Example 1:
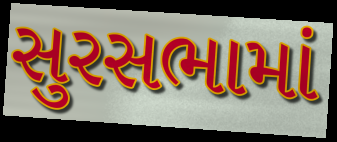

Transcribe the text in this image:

સુરસભામાં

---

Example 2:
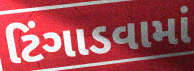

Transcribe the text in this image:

ટિંગાડવામાં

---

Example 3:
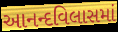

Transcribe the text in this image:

આનન્દવિલાસમાં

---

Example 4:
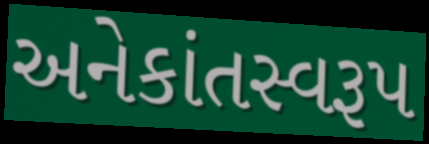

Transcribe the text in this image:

અનેકાંતસ્વરૂપ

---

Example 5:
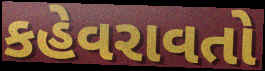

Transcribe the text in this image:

કહેવરાવતો